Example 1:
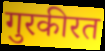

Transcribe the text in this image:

गुरकीरत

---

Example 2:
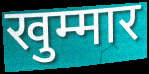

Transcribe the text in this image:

खुम्मार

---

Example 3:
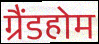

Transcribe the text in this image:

ग्रैंडहोम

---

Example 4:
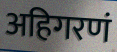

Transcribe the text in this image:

अहिगरणं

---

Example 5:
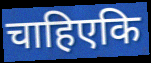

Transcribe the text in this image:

चाहिएकि